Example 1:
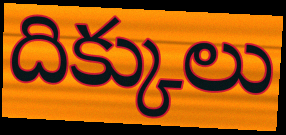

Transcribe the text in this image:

దిక్కులు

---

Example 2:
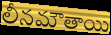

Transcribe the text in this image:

లీనమౌతాయి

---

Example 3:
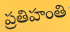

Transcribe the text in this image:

ప్రతిహంతి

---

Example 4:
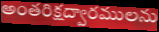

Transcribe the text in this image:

అంతరిక్షద్వారములను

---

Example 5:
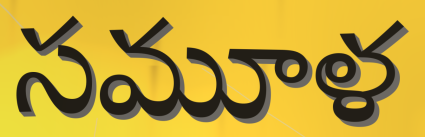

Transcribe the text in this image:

సమూళ